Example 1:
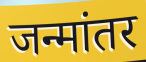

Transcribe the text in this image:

जन्मांतर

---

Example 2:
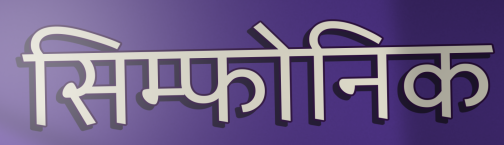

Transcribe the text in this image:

सिम्फोनिक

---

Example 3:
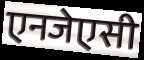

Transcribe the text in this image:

एनजेएसी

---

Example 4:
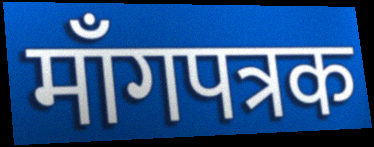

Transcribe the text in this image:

माँगपत्रक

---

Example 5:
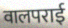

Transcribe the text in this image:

वालपराई